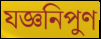
যজ্ঞনিপুণ